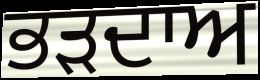
ਭੜਦਾਅ